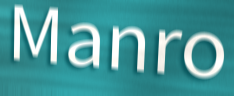
Manro